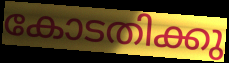
കോടതിക്കു